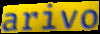
arivo